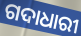
ଗଦାଧାରୀ